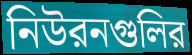
নিউরনগুলির